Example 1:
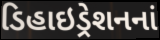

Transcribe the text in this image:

ડિહાઇડ્રેશનનાં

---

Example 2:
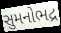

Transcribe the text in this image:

સુમનોભદ્ર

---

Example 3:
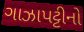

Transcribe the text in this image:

ગાઝાપટ્ટીનો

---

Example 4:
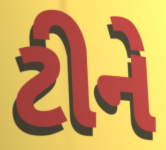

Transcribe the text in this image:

ટીને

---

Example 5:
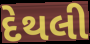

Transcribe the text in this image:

દેથલી